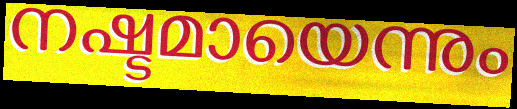
നഷ്ടമായെന്നും